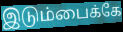
இடும்பைக்கே